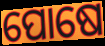
ପୋଷେ